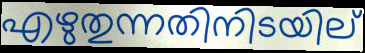
എഴുതുന്നതിനിടയില്